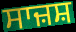
ਸਾਜ਼ਸ਼